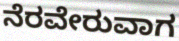
ನೆರವೇರುವಾಗ